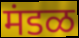
मंडळ